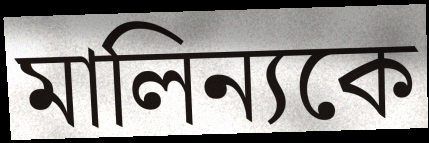
মালিন্যকে